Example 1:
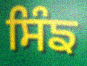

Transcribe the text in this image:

ਸਿੰਙ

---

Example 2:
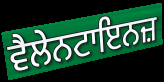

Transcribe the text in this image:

ਵੈਲੇਨਟਾਇਨਜ਼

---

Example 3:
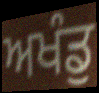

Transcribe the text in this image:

ਅਖੰਡੁ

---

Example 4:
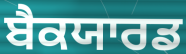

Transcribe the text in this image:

ਬੈਕਯਾਰਡ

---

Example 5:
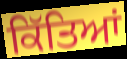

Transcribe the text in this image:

ਕਿੱਤਿਆਂ